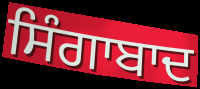
ਸਿੰਗਾਬਾਦ